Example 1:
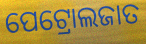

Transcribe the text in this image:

ପେଟ୍ରୋଲଜାତ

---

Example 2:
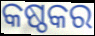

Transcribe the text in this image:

କଷ୍ଠକର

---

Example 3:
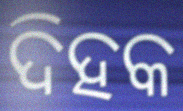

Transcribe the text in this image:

ଦିହକ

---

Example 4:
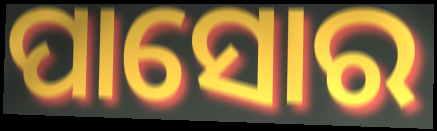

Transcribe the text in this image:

ପାସୋର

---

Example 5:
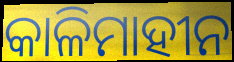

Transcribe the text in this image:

କାଳିମାହୀନ